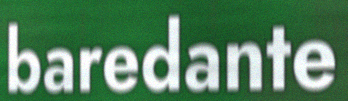
baredante